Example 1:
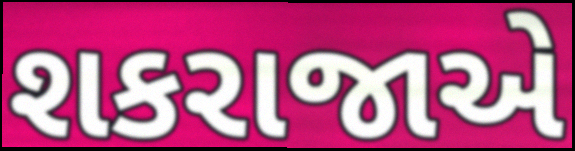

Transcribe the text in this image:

શકરાજાએ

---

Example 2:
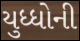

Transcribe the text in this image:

યુધ્ધોની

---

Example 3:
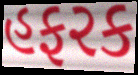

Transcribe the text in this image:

હફરક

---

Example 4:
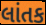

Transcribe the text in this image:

લાંતક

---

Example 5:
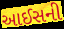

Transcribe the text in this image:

આઈસની